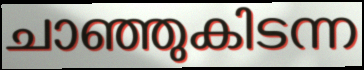
ചാഞ്ഞുകിടന്ന